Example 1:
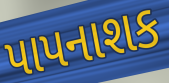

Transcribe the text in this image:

પાપનાશક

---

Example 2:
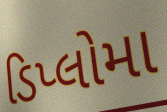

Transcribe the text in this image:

ડિપ્લોમા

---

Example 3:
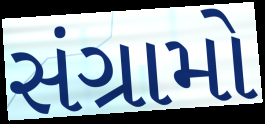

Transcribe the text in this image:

સંગ્રામો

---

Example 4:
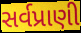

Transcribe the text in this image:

સર્વપ્રાણી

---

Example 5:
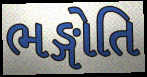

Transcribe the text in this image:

ભઙ્ગોતિ